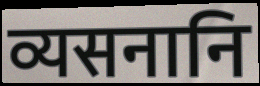
व्यसनानि